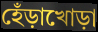
হেঁড়াখোড়া